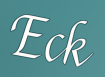
Eck